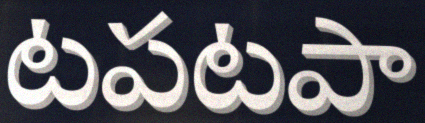
టపటపా